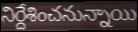
నిర్దేశించనున్నాయి